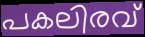
പകലിരവ്